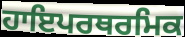
ਹਾਇਪਰਥਰਮਿਕ